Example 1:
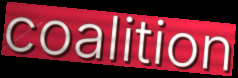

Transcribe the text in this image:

coalition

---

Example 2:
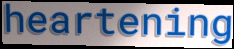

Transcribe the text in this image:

heartening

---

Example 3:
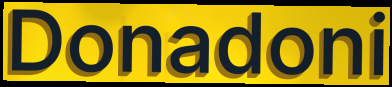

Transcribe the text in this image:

Donadoni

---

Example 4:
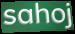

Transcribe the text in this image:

sahoj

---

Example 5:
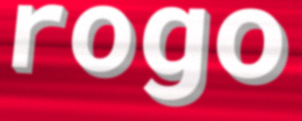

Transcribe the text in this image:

rogo